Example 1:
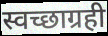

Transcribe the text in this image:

स्वच्छाग्रही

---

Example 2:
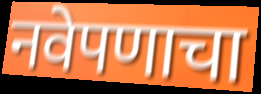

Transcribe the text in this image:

नवेपणाचा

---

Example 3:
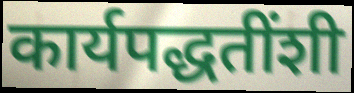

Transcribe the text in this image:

कार्यपद्धतींशी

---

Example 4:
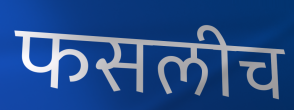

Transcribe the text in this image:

फसलीच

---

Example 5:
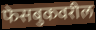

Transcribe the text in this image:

फेसबुकवरील